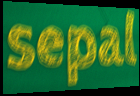
sepal